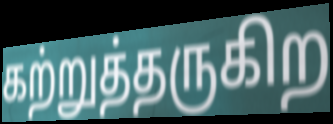
கற்றுத்தருகிற